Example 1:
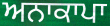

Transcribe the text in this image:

ਅਨਾਕਾਪਾ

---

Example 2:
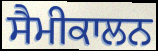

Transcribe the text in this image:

ਸੈਮੀਕਾਲਨ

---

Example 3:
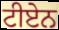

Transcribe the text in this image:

ਟੀਏਨ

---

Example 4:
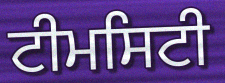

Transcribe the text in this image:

ਟੀਮਸਿਟੀ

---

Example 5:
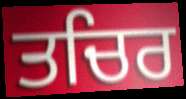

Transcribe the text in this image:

ਤਚਿਰ